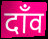
दाँव